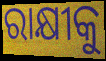
ରାକ୍ଷୀକୁ